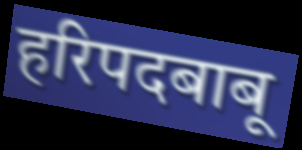
हरिपदबाबू